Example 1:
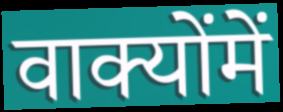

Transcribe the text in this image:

वाक्योंमें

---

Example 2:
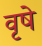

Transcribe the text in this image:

वृषे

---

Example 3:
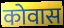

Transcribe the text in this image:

कोवास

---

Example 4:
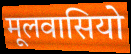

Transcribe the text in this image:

मूलवासियो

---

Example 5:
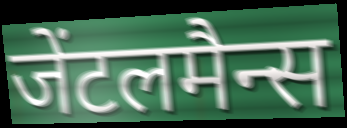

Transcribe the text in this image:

जेंटलमैन्स